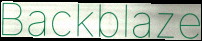
Backblaze